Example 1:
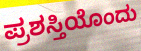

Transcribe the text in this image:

ಪ್ರಶಸ್ತಿಯೊಂದು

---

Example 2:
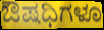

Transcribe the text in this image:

ಔಷಧಿಗಳೂ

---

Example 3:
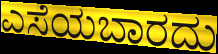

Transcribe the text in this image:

ಎಸೆಯಬಾರದು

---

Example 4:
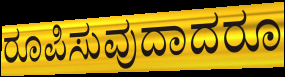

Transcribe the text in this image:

ರೂಪಿಸುವುದಾದರೂ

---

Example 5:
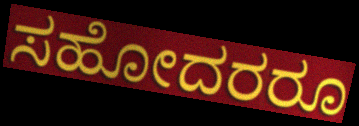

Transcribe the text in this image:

ಸಹೋದರರೂ